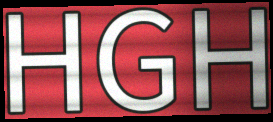
HGH